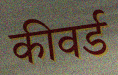
कीवर्ड